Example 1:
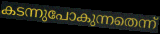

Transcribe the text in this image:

കടന്നുപോകുന്നതെന്ന്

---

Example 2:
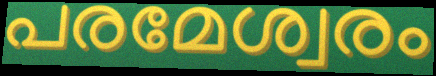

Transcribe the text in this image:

പരമേശ്വരം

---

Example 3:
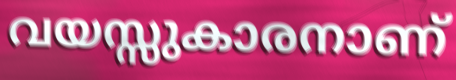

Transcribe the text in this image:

വയസ്സുകാരനാണ്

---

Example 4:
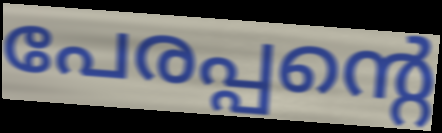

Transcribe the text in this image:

പേരപ്പന്റെ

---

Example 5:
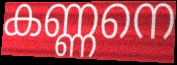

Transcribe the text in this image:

കണ്ണനെ